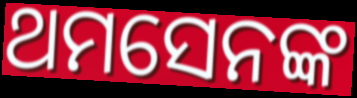
ଥମସେନଙ୍କ